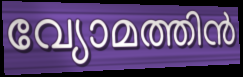
വ്യോമത്തിൻ